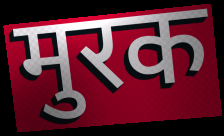
मुरक